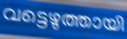
വട്ടെഴുത്തായി